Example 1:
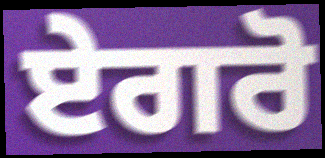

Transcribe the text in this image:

ਏਗਰੋ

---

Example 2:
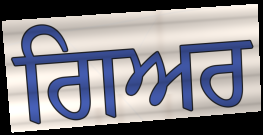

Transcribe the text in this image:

ਗਿਅਰ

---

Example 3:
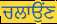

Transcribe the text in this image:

ਚਲਾਉਂਣ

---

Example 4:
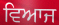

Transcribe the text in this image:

ਵਿਆਜ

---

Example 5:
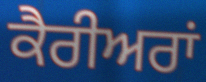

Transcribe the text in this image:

ਕੈਰੀਅਰਾਂ